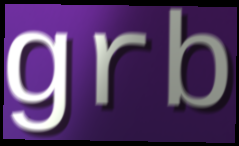
grb